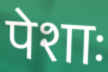
पेशाः